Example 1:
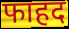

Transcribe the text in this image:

फाहद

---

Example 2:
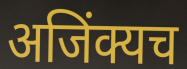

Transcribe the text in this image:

अजिंक्यच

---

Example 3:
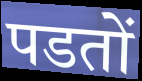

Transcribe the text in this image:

पडतों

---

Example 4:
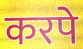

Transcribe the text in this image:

करपे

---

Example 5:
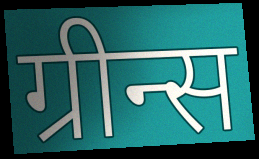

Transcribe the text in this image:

ग्रीन्स